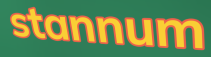
stannum